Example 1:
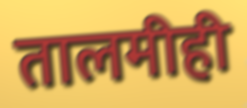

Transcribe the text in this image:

तालमीही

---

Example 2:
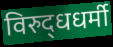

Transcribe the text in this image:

विरुद्धधर्मी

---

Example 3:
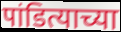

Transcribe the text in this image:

पांडित्याच्या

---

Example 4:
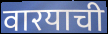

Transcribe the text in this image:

वारयाची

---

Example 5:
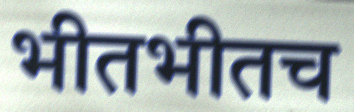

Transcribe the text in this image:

भीतभीतच